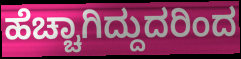
ಹೆಚ್ಚಾಗಿದ್ದುದರಿಂದ